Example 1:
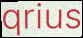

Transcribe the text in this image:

qrius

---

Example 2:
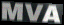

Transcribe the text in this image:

MVA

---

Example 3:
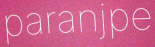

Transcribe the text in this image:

paranjpe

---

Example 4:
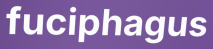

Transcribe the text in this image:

fuciphagus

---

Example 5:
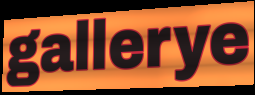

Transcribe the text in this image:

gallerye